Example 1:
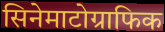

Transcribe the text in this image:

सिनेमाटोग्राफिक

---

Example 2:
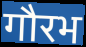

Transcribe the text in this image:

गौरभ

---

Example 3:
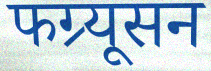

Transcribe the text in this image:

फग्र्यूसन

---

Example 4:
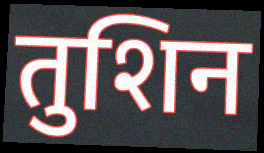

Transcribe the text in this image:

तुशिन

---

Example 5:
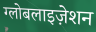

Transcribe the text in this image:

ग्लोबलाइज़ेशन